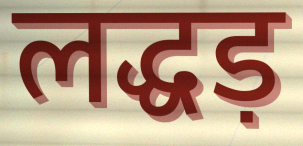
लद्धड़